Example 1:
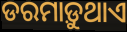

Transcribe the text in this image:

ଡରମାଡ଼ୁଥାଏ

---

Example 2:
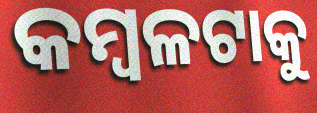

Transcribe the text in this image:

କମ୍ବଳଟାକୁ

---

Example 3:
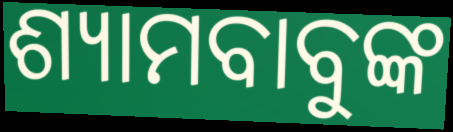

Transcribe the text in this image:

ଶ୍ୟାମବାବୁଙ୍କ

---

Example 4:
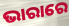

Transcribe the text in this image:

ଭାରାରେ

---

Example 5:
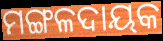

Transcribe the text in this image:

ମଙ୍ଗଳଦାୟକ